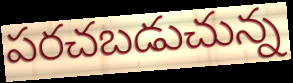
పరచబడుచున్న